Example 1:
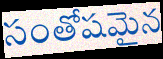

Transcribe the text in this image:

సంతోషమైన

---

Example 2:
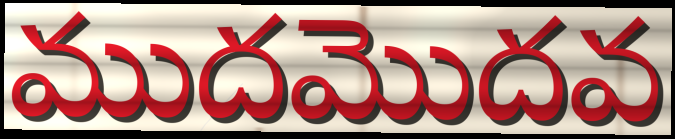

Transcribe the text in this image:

ముదమొదవ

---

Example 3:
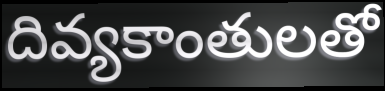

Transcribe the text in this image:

దివ్యకాంతులతో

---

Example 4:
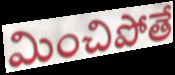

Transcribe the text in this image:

మించిపోతే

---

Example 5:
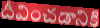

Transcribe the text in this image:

దీవించడానికి